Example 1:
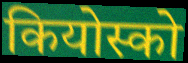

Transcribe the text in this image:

कियोस्को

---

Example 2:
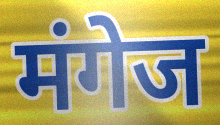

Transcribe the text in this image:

मंगेज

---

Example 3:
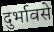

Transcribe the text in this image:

दुर्भावसे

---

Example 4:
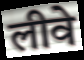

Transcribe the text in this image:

लीवे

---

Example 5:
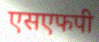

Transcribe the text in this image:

एसएफपी